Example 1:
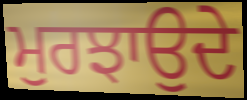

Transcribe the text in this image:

ਮੁਰਝਾਉਦੇ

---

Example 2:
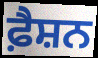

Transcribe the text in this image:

ਫ਼ੈਸ਼ਨ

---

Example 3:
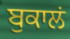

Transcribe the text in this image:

ਬੁਕਾਲਂ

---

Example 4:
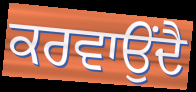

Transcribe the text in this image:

ਕਰਵਾਉਂਦੈ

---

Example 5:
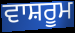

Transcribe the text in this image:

ਵਾਸ਼ਰੂਮ